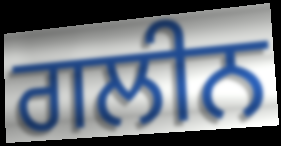
ਗਲੀਨ